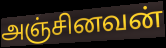
அஞ்சினவன்